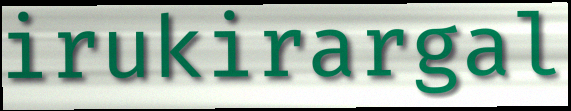
irukirargal